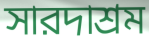
সারদাশ্রম